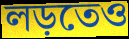
লড়তেও